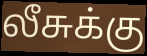
லீசுக்கு